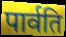
पार्वति